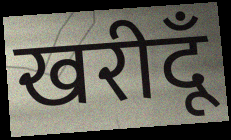
खरीदूँ